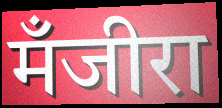
मँजीरा